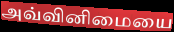
அவ்வினிமையை